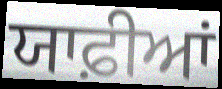
ਯਾਫ਼ੀਆਂ